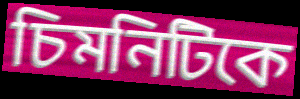
চিমনিটিকে